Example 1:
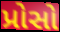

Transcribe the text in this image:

પ્રોસો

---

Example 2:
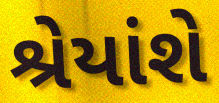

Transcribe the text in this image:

શ્રેયાંશે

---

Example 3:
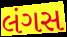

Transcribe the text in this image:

લંગસ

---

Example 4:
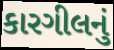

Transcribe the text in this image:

કારગીલનું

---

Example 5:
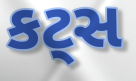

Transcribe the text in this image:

કટ્સ